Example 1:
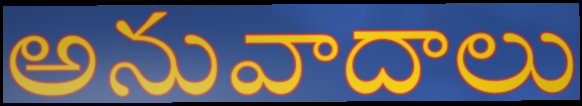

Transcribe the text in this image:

అనువాదాలు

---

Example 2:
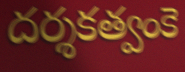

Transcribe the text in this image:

దర్శకత్వంకె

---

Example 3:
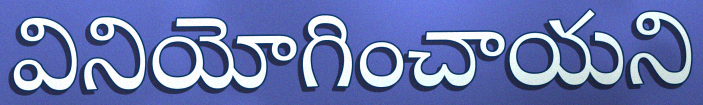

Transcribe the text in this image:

వినియోగించాయని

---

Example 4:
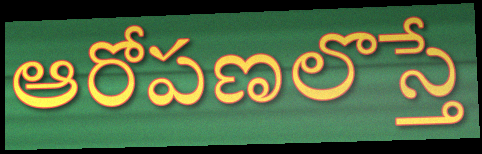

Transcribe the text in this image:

ఆరోపణలొస్తే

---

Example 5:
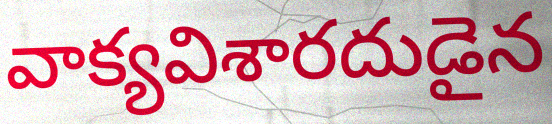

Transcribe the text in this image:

వాక్యవిశారదుడైన